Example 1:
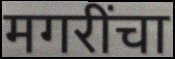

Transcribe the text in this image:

मगरींचा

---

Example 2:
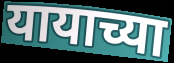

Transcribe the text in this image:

यायाच्या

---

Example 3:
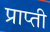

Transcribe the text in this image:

प्राप्ती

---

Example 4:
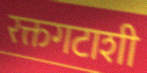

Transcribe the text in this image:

रक्तगटाशी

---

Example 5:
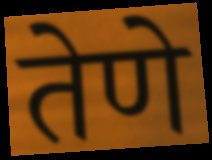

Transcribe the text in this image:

तेणे